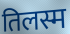
तिलस्म